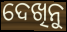
ଦେଖିନୁ